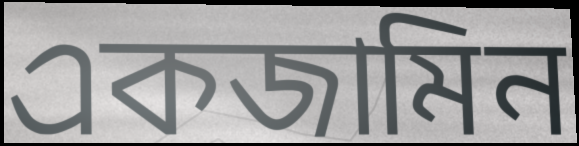
একজামিন